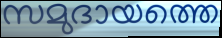
സമുദായത്തെ